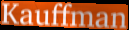
Kauffman